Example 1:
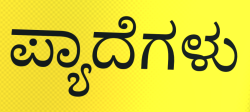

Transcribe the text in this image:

ಪ್ಯಾದೆಗಳು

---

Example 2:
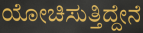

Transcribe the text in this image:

ಯೋಚಿಸುತ್ತಿದ್ದೇನೆ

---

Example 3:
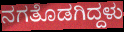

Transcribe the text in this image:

ನಗತೊಡಗಿದ್ದಳು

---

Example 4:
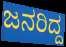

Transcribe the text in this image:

ಜನರಿದ್ದ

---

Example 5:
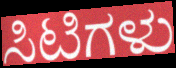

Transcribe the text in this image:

ಸಿಟಿಗಳು